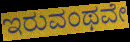
ಇರುವಂಥವೇ